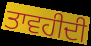
ਤਾਵਹੀਦੀ